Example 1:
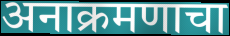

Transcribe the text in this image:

अनाक्रमणाचा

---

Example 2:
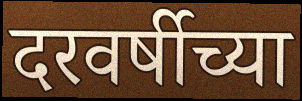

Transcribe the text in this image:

दरवर्षीच्या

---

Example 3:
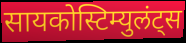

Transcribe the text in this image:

सायकोस्टिम्युलंट्स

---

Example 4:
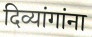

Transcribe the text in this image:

दिव्यांगांना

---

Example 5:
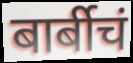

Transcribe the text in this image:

बार्बीचं